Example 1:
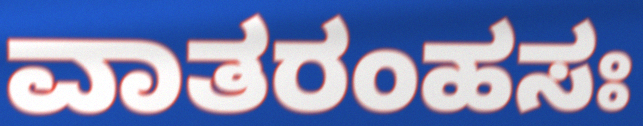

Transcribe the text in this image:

ವಾತರಂಹಸಃ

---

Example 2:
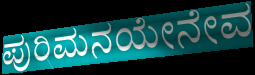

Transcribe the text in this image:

ಪುರಿಮನಯೇನೇವ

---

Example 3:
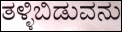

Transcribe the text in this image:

ತಳ್ಳಿಬಿಡುವನು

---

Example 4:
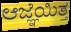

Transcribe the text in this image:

ಆಜ್ಞೆಯಿತ್ತ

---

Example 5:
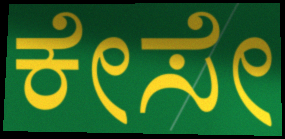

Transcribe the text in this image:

ಕೇಸೇ